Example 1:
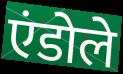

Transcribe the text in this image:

एंडोले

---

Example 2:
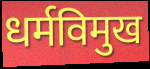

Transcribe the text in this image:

धर्मविमुख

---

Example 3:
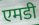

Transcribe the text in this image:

एमडी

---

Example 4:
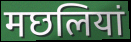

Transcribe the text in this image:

मछलियां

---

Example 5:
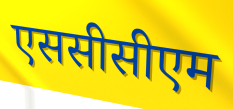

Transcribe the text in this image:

एससीसीएम